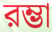
রম্ভা